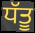
ਧੱਤੂ